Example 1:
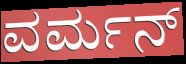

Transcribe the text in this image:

ವರ್ಮನ್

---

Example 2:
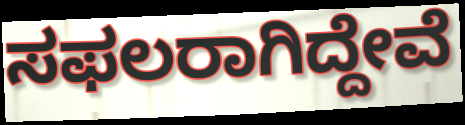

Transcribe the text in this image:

ಸಫಲರಾಗಿದ್ದೇವೆ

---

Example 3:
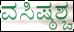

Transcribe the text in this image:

ವಸಿಷ್ಠಶ್ಚ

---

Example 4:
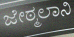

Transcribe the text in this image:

ಜೇಠ್ಮಲಾನಿ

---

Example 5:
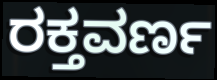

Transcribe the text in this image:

ರಕ್ತವರ್ಣ